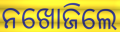
ନଖୋଜିଲେ